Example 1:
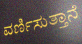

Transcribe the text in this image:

ವರ್ಣಿಸುತ್ತಾನೆ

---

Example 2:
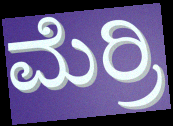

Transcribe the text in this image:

ಮೆರ್ರಿ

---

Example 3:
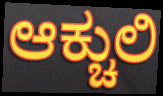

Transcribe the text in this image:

ಆಕ್ಚುಲಿ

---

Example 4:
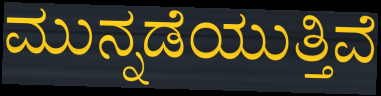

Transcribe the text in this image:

ಮುನ್ನಡೆಯುತ್ತಿವೆ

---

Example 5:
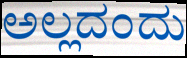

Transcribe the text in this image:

ಅಲ್ಲದಂದು